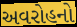
અવરોહનો